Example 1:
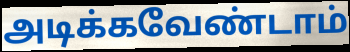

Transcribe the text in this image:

அடிக்கவேண்டாம்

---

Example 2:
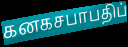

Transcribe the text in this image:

கனகசபாபதிப்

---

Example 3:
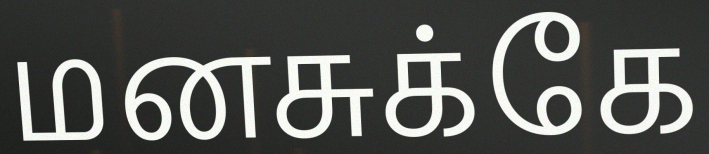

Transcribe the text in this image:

மனசுக்கே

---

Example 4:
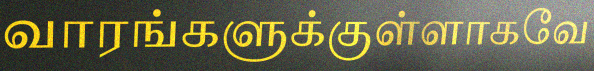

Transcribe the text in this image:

வாரங்களுக்குள்ளாகவே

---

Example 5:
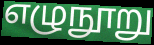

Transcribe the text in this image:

எழுநூறு